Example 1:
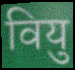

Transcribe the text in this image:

वियु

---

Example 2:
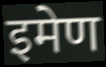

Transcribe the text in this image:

इमेण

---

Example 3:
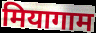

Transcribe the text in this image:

मियागाम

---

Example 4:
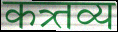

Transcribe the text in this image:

कत्र्तव्य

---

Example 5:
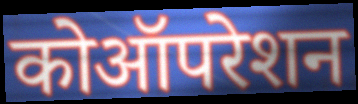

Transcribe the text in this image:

कोऑपरेशन